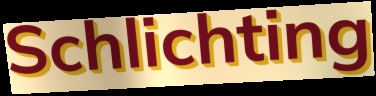
Schlichting